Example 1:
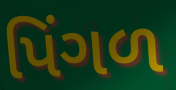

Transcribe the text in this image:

પિંગળ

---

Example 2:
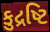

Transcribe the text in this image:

કુદ્રષ્ટિ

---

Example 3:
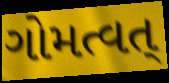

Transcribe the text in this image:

ગોમત્વત્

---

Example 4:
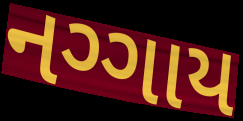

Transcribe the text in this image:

નગ્ગાય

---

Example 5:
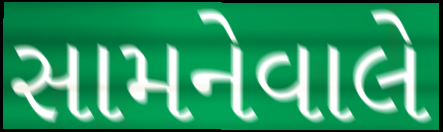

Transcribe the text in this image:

સામનેવાલે